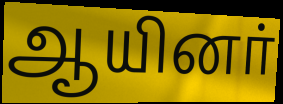
ஆயினர்